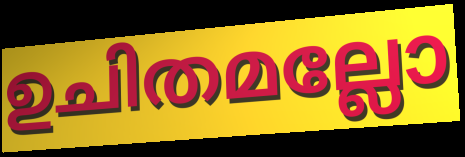
ഉചിതമല്ലോ